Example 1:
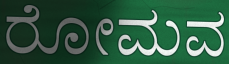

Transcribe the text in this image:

ರೋಮವ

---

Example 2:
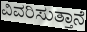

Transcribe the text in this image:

ವಿವರಿಸುತ್ತಾನೆ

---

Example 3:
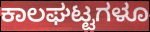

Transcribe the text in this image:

ಕಾಲಘಟ್ಟಗಳೂ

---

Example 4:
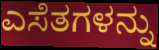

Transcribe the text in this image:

ಎಸೆತಗಳನ್ನು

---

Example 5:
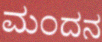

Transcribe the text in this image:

ಮಂದನ